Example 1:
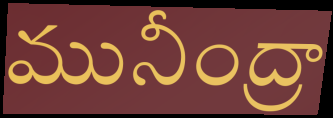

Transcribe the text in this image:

మునీంద్రా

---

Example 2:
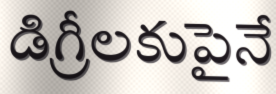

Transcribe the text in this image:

డిగ్రీలకుపైనే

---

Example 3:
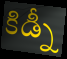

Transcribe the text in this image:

కిడ్నీ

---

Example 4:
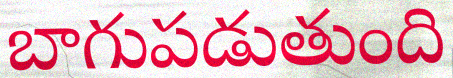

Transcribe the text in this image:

బాగుపడుతుంది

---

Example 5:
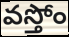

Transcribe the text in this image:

వస్తోం